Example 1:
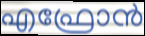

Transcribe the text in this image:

എഫ്രോൻ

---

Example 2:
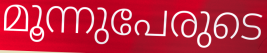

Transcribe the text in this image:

മൂന്നുപേരുടെ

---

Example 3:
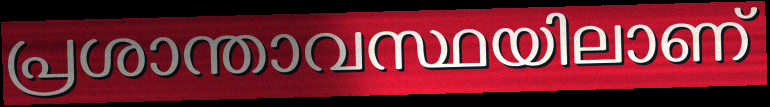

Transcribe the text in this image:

പ്രശാന്താവസ്ഥയിലാണ്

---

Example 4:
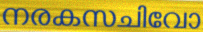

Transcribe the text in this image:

നരകസചിവോ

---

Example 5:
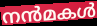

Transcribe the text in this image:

നൻമകൾ